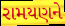
રામયણને